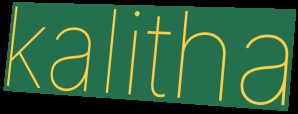
kalitha